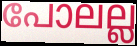
പോലല്ല